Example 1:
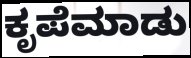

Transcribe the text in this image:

ಕೃಪೆಮಾಡು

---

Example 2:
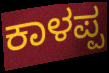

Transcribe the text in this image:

ಕಾಳಪ್ಪ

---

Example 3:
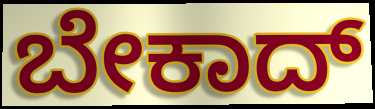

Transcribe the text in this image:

ಬೇಕಾದ್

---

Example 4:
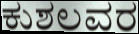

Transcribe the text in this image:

ಕುಶಲವರ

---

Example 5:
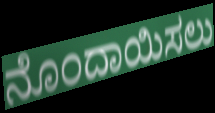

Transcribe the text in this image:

ನೊಂದಾಯಿಸಲು